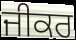
ਜੀਕਰ